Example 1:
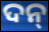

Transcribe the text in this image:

ଦନ୍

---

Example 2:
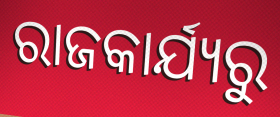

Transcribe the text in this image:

ରାଜକାର୍ଯ୍ୟରୁ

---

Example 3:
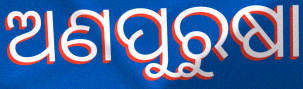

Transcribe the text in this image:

ଅଣପୁରୁଷା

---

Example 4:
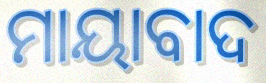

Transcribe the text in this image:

ମାୟାବାଦ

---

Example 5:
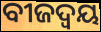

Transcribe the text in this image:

ବୀଜଦ୍ଵୟ